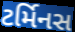
ટર્મિનસ